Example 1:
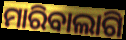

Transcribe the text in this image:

ମାରିବାଲାଗି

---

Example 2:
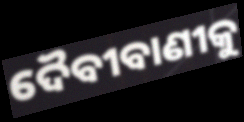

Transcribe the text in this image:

ଦୈବୀବାଣୀକୁ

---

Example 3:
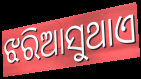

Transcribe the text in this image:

ଝରିଆସୁଥାଏ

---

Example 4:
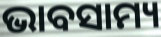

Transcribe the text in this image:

ଭାବସାମ୍ୟ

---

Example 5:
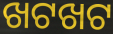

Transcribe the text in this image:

ଖଟଖଟ